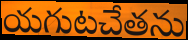
యగుటచేతను